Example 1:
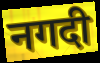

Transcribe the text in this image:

नगदी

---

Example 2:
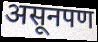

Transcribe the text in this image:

असूनपण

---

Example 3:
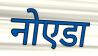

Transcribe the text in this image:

नोएडा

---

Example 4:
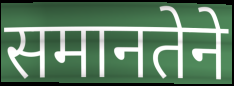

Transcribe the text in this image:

समानतेने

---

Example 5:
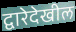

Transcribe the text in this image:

द्वारेदेखील